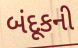
બંદૂકની